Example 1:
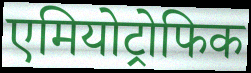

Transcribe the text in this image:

एमियोट्रोफिक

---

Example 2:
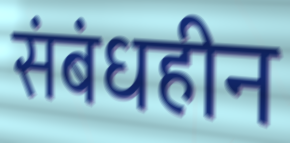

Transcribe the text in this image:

संबंधहीन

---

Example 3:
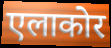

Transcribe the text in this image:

एलाकोर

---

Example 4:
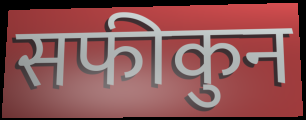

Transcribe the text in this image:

सफीकुन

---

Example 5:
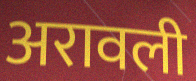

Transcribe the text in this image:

अरावली